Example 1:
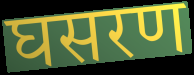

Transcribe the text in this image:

घसरण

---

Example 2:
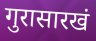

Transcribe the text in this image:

गुरासारखं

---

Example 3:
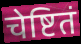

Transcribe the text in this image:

चेष्टितं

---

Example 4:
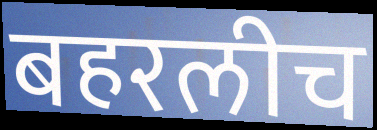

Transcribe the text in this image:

बहरलीच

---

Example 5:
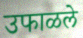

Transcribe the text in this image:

उफाळले